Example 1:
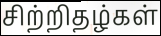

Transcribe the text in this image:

சிற்றிதழ்கள்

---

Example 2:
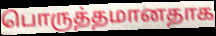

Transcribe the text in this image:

பொருத்தமானதாக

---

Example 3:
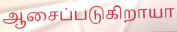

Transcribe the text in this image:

ஆசைப்படுகிறாயா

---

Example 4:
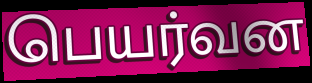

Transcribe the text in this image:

பெயர்வன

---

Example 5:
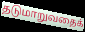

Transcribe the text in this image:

தடுமாறுவதைக்